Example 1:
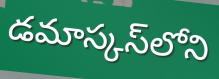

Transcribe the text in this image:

డమాస్కస్‌లోని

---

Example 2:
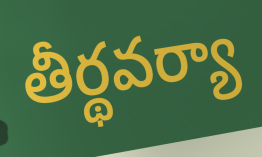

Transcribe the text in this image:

తీర్థవర్యా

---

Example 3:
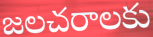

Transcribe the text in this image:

జలచరాలకు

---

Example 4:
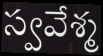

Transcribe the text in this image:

స్వవేశ్మ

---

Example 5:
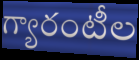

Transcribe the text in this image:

గ్యారంటీల